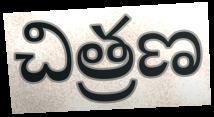
చిత్రణ